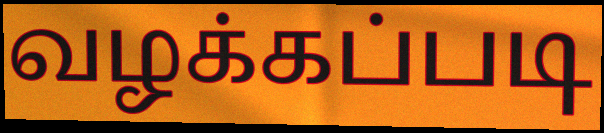
வழக்கப்படி